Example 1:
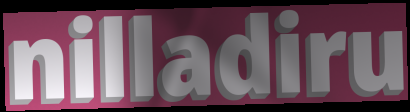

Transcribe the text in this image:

nilladiru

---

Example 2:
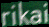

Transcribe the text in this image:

rikai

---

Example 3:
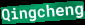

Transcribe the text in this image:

Qingcheng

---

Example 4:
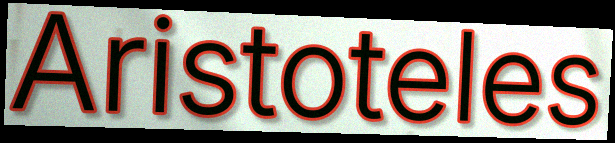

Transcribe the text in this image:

Aristoteles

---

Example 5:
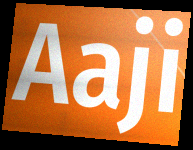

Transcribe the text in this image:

Aaji